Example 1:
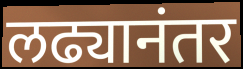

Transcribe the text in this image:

लढ्यानंतर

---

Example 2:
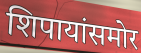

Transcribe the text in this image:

शिपायांसमोर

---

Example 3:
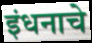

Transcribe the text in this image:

इंधनाचे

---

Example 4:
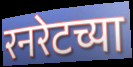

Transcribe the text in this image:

रनरेटच्या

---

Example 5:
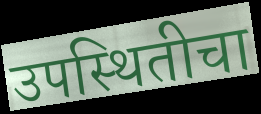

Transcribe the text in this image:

उपस्थितीचा